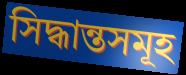
সিদ্ধান্তসমূহ